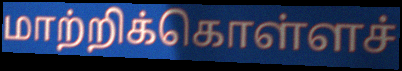
மாற்றிக்கொள்ளச்